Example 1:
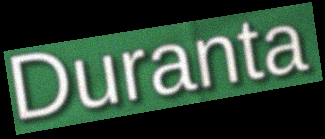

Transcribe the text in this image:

Duranta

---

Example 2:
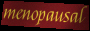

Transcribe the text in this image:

menopausal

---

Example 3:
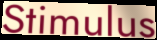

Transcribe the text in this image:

Stimulus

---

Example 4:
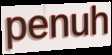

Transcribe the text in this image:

penuh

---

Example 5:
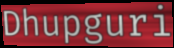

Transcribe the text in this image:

Dhupguri